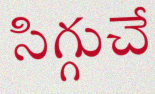
సిగ్గుచే